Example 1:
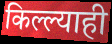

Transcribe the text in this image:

किल्ल्याही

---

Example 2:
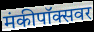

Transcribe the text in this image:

मंकीपॉक्सवर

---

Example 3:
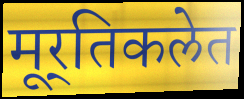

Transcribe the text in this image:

मूर्तिकलेत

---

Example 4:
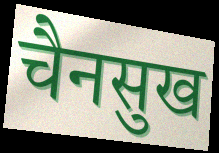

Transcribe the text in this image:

चैनसुख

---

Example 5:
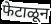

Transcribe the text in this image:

फेटाळून